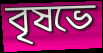
বৃষভে